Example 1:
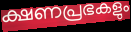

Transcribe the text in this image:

ക്ഷണപ്രഭകളും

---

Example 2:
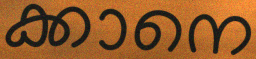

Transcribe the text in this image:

ക്കാനെ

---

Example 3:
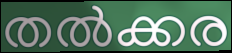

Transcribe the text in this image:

തൽക്കര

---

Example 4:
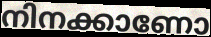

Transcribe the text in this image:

നിനക്കാണോ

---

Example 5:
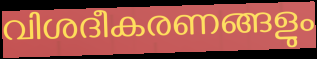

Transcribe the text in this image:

വിശദീകരണങ്ങളും